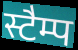
स्टैम्प